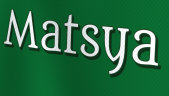
Matsya